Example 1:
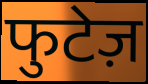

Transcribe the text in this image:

फुटेज़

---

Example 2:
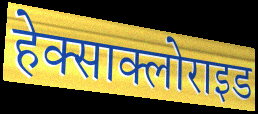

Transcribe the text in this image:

हेक्साक्लोराइड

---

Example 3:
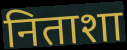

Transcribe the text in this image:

निताशा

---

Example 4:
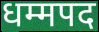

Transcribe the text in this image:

धम्मपद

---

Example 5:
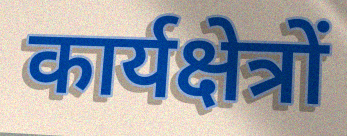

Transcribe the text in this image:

कार्यक्षेत्रों